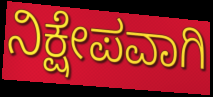
ನಿಕ್ಷೇಪವಾಗಿ